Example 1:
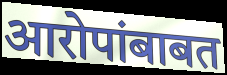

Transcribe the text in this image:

आरोपांबाबत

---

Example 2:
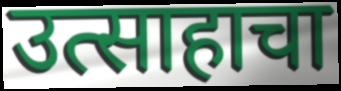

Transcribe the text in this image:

उत्साहाचा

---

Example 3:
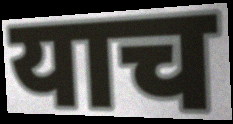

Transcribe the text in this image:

याच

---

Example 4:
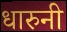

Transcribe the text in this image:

धारुनी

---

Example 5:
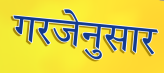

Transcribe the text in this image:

गरजेनुसार